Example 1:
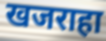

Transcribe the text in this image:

खजराहा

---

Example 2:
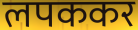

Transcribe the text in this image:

लपककर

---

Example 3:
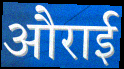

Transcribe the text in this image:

औराई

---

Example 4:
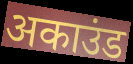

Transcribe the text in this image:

अकाउंड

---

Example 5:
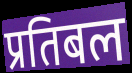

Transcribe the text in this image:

प्रतिबल